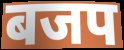
बजप